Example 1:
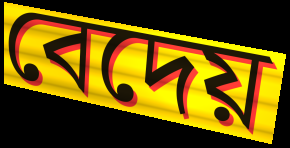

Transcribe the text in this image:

বেদেয়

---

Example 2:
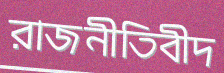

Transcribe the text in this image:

রাজনীতিবীদ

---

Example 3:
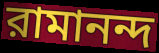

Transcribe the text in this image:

রামানন্দ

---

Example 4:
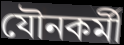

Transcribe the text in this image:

যৌনকর্মী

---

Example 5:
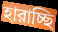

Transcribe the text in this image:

হারাচ্ছি